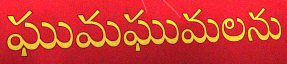
ఘుమఘుమలను